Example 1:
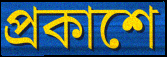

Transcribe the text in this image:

প্রকাশে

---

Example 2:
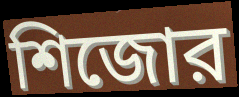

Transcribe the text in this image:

শিজোর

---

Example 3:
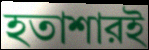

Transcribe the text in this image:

হতাশারই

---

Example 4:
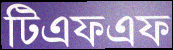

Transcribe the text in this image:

টিএফএফ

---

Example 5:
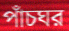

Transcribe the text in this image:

পাঁচঘর